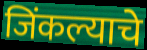
जिंकल्याचे